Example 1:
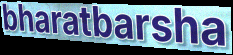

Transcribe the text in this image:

bharatbarsha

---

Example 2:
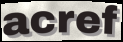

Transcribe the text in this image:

acref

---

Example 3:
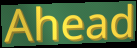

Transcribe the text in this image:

Ahead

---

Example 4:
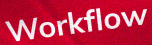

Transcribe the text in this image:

Workflow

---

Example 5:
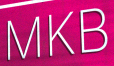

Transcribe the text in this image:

MKB